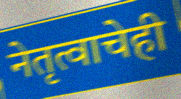
नेतृत्वाचेही